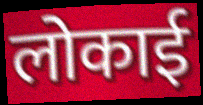
लोकाई